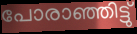
പോരാഞ്ഞിട്ടു്